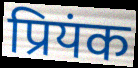
प्रियंक